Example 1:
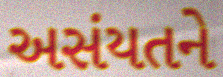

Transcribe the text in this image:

અસંયતને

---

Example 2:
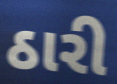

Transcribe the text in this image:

ઠારી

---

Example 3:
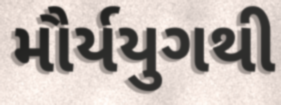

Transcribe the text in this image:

મૌર્યયુગથી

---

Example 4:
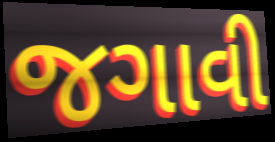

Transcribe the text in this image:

જગાવી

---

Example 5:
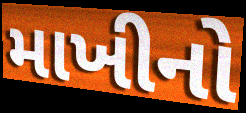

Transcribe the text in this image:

માખીનો